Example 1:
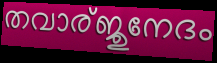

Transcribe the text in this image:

തവാര്ജുനേദം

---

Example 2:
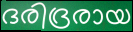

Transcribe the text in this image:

ദരിദ്രരായ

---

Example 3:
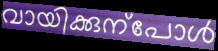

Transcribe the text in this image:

വായിക്കുന്പോൾ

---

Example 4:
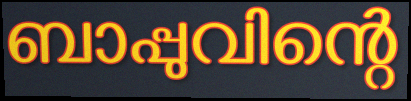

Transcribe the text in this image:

ബാപ്പുവിന്റെ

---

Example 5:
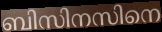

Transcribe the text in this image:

ബിസിനസിനെ